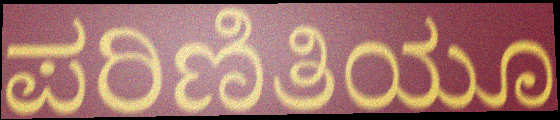
ಪರಿಣಿತಿಯೂ